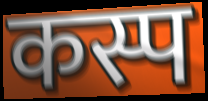
कस्प